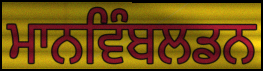
ਮਾਨਵਿੰਬਲਡਨ